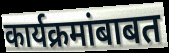
कार्यक्रमांबाबत